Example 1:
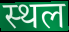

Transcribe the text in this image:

स्थल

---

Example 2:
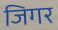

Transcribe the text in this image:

जिगर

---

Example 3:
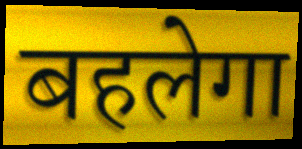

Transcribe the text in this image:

बहलेगा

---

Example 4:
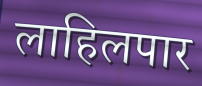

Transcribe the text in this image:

लाहिलपार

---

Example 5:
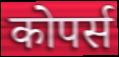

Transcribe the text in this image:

कोपर्स